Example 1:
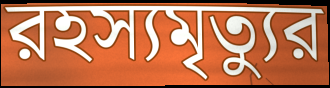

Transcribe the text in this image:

রহস্যমৃত্যুর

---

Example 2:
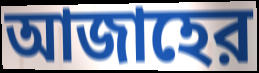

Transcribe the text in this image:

আজাহের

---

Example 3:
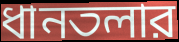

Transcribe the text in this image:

ধানতলার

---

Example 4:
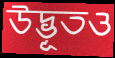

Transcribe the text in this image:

উদ্ভূতও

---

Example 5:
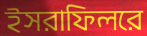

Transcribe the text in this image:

ইসরাফিলরে